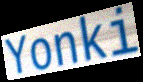
Yonki